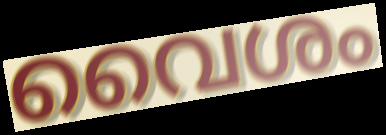
വൈശം